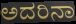
ಅದರಿನಾ